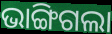
ଭାଙ୍ଗିଗଲା